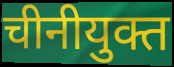
चीनीयुक्त